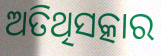
ଅତିଥିସତ୍କାର